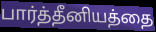
பார்த்தீனியத்தை